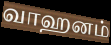
வாஹனம்